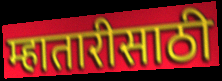
म्हातारीसाठी